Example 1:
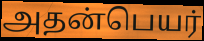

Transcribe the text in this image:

அதன்பெயர்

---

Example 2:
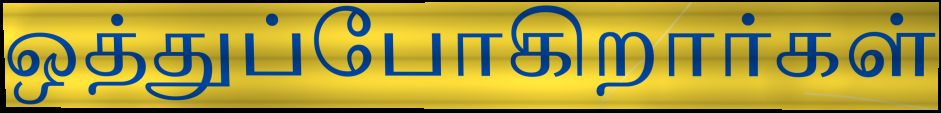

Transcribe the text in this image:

ஒத்துப்போகிறார்கள்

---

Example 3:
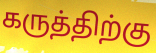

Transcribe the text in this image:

கருத்திற்கு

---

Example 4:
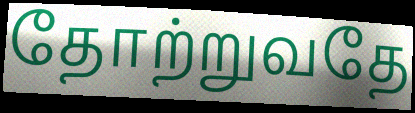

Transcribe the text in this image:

தோற்றுவதே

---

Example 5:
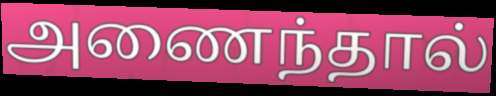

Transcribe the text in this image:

அணைந்தால்